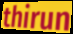
thirun